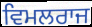
ਵਿਮਲਰਾਜ